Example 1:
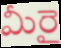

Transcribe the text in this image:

మీరై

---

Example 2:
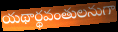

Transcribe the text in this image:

యథార్థవంతులనుగా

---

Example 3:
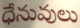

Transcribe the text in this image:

ధేనువులు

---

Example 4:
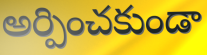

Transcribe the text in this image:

అర్పించకుండా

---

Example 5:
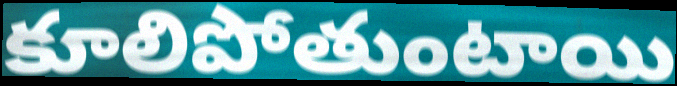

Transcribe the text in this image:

కూలిపోతుంటాయి